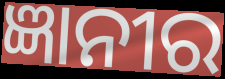
ଜ୍ଞାନୀର